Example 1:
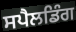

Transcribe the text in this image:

ਸਪੈਲਡਿੰਗ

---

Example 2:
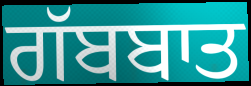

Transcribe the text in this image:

ਗੱਬਬਾਤ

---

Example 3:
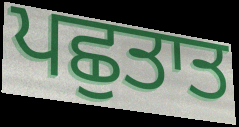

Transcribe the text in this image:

ਪਛੁਤਾਤ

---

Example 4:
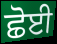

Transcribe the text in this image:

ਛੋਈ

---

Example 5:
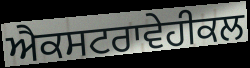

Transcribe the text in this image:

ਐਕਸਟਰਾਵੇਹੀਕਲ